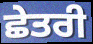
ਛੇਤਰੀ